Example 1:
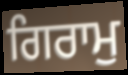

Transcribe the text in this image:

ਗਿਰਾਮੁ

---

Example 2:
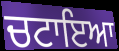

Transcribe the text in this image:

ਚਟਾਇਆ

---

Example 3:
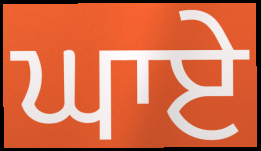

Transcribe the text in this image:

ਘਾਏ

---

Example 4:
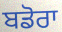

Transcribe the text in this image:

ਬਡੋਰਾ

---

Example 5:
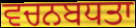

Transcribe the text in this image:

ਵਚਨਬਧਤਾ